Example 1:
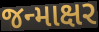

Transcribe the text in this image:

જન્માક્ષર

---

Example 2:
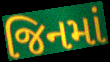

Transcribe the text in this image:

જિનમાં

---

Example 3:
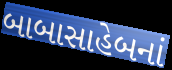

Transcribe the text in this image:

બાબાસાહેબનાં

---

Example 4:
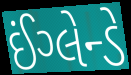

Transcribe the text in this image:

ઈંગ્લેન્ડે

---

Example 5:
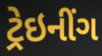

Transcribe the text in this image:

ટ્રેઇનીંગ